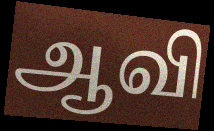
ஆவி